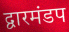
द्वारमंडप